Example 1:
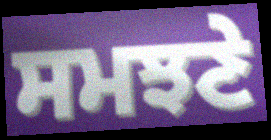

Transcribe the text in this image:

ਸਮਝਣੇ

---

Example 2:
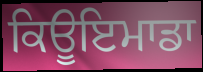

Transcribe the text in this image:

ਕਿਊਇਮਾਡਾ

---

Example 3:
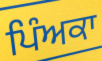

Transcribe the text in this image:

ਪਿੰਅਕਾ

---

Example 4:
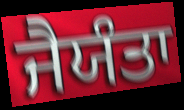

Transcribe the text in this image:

ਜੈਯੰਤਾ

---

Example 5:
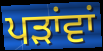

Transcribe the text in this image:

ਪੜਾਂਵਾਂ